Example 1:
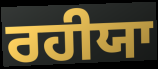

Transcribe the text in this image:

ਰਹੀਯਾ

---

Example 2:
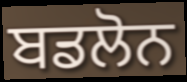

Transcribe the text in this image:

ਬਡਲੋਨ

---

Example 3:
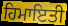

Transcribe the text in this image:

ਹਿਮਾਇਤੀ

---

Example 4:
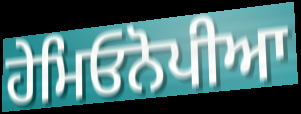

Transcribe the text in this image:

ਹੇਮਿਓਨੋਪੀਆ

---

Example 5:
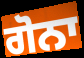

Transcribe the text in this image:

ਗੋਨਾ